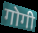
गोगी